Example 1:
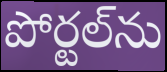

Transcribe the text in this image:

పోర్టల్‌ను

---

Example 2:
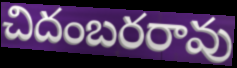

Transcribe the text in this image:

చిదంబరరావు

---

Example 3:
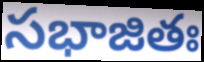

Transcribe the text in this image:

సభాజితః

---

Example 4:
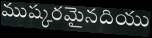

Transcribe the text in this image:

ముష్కరమైనదియు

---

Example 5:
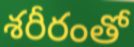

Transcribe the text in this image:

శరీరంతో